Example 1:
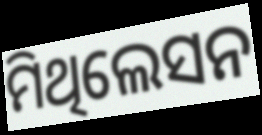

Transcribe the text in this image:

ମିଥିଲେସନ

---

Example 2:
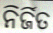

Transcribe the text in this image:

ନିର୍ଜିତ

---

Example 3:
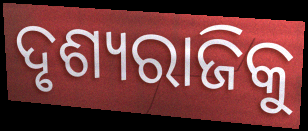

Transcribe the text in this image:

ଦୃଶ୍ୟରାଜିକୁ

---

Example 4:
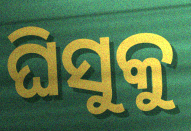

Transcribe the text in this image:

ଘିସୁକୁ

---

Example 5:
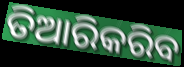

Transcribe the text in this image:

ତିଆରିକରିବ